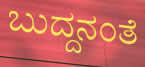
ಬುದ್ದನಂತೆ